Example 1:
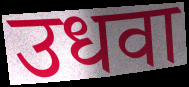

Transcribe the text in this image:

उधवा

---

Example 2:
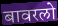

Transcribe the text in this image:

बावरलो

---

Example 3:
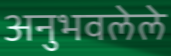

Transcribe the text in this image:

अनुभवलेले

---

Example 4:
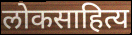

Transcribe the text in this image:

लोकसाहित्य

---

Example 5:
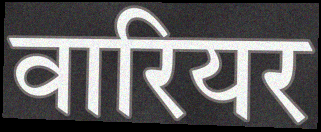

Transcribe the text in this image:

वारियर